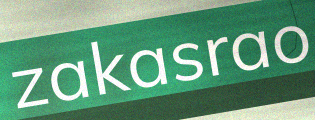
zakasrao